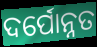
ଦର୍ପୋନ୍ନତ